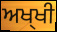
ਅਖ੍ਖੀ